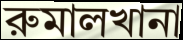
রুমালখানা